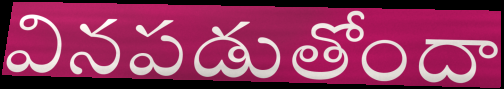
వినపడుతోందా